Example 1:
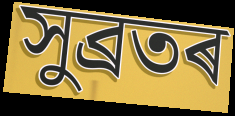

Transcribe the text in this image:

সুব্ৰতৰ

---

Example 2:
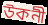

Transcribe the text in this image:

উকনী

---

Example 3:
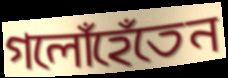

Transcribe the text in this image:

গলোঁহেঁতেন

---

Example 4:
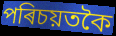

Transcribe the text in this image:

পৰিচয়তকৈ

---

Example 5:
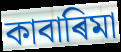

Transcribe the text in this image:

কাবাৰিমা